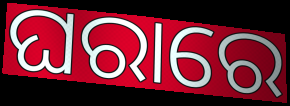
ଘରାରେ